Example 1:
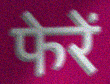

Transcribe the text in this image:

फेरें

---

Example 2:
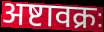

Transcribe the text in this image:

अष्टावक्रः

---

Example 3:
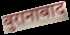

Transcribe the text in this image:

बुरानाबाद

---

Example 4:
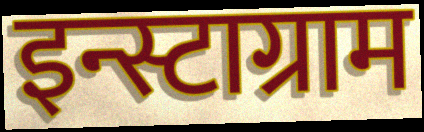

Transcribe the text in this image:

इन्स्टाग्राम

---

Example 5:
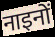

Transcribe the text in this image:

नाइनों